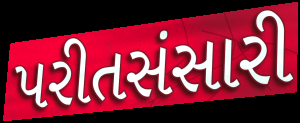
પરીતસંસારી